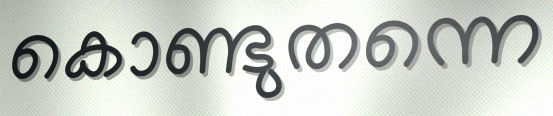
കൊണ്ടുതന്നെ